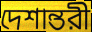
দেশান্তরী